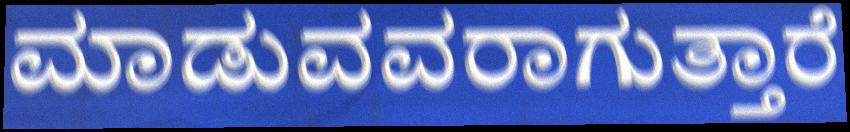
ಮಾಡುವವರಾಗುತ್ತಾರೆ